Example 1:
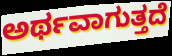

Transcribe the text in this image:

ಅರ್ಥವಾಗುತ್ತದೆ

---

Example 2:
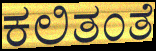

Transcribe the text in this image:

ಕಲಿತಂತೆ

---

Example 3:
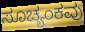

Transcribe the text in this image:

ಸೂಚ್ಯಂಕವು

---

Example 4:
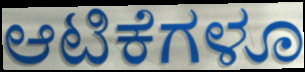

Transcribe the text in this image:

ಆಟಿಕೆಗಳೂ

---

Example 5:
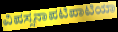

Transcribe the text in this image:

ವಿಪಸ್ಸನಾಪಟಿಪಾಟಿಯಾ